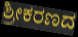
ಶ್ರೀಕರಣದ